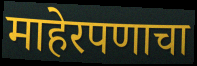
माहेरपणाचा